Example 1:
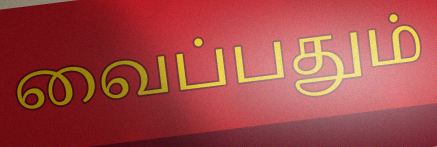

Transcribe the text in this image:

வைப்பதும்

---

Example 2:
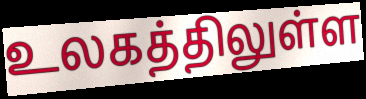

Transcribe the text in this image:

உலகத்திலுள்ள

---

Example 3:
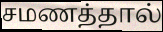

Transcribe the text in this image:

சமணத்தால்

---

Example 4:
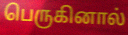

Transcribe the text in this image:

பெருகினால்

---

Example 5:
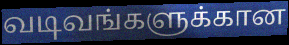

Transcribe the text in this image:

வடிவங்களுக்கான